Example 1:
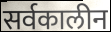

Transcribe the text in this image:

सर्वकालीन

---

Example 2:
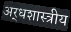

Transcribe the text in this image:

अर्धशास्त्रीय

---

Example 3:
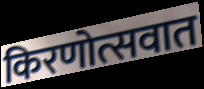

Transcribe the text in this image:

किरणोत्सवात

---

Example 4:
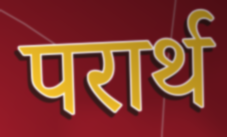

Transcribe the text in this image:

परार्थ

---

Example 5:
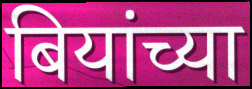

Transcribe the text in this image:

बियांच्या